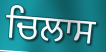
ਚਿਲਾਸ